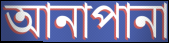
আনাপানা